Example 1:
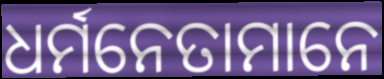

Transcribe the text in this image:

ଧର୍ମନେତାମାନେ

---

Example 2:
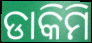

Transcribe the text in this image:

ଡାକିମି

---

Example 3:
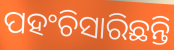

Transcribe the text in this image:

ପହଂଚିସାରିଛନ୍ତି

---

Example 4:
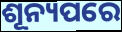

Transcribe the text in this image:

ଶୂନ୍ୟପରେ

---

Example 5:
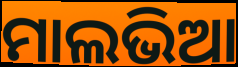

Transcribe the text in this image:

ମାଲଭିଆ